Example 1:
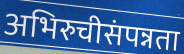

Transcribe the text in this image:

अभिरुचीसंपन्नता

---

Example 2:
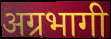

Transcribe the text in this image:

अग्रभागी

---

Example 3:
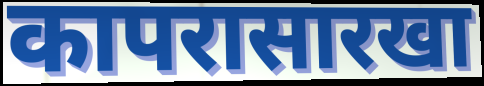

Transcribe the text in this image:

कापरासारखा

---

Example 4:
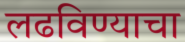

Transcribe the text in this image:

लढविण्याचा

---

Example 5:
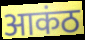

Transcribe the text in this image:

आकंठ